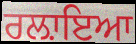
ਰਲ਼ਾਇਆ